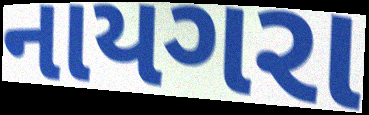
નાયગરા